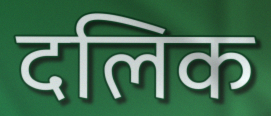
दलिक